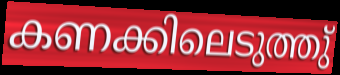
കണക്കിലെടുത്തു്